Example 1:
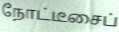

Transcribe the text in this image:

நோட்டீசைப்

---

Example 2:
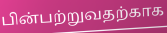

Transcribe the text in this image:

பின்பற்றுவதற்காக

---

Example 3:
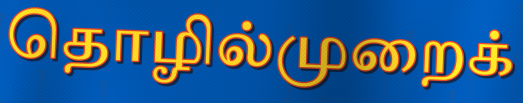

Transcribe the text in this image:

தொழில்முறைக்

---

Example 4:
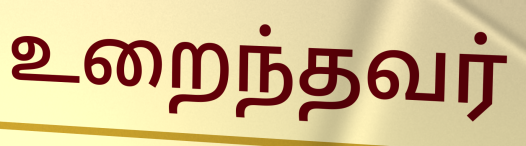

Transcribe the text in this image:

உறைந்தவர்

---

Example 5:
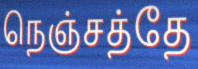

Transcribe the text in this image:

நெஞ்சத்தே